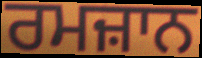
ਰਮਜ਼ਾਨ